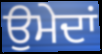
ਉਮੇਦਾਂ